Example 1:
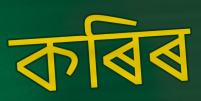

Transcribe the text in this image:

কৰিৰ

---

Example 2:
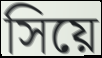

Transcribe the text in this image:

সিয়ে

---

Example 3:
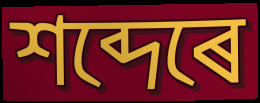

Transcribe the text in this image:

শব্দেৰে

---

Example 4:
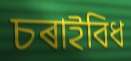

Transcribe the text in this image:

চৰাইবিধ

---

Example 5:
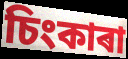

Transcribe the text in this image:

চিংকাৰা